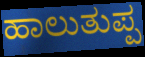
ಹಾಲುತುಪ್ಪ